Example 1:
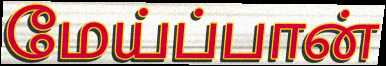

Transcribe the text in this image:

மேய்ப்பான்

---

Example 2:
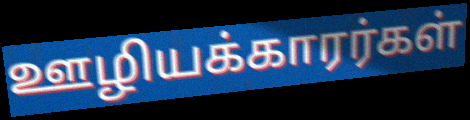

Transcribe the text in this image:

ஊழியக்காரர்கள்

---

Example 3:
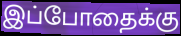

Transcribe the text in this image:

இப்போதைக்கு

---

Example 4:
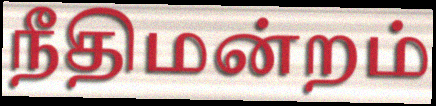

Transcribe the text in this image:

நீதிமன்றம்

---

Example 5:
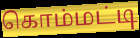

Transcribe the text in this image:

கொம்மட்டி